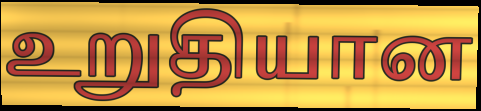
உறுதியான